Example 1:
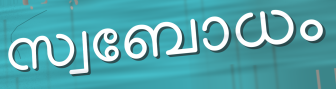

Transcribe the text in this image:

സ്വബോധം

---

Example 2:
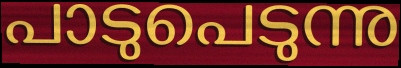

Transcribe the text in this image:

പാടുപെടുന്നു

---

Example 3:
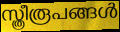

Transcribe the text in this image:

സ്ത്രീരൂപങ്ങൾ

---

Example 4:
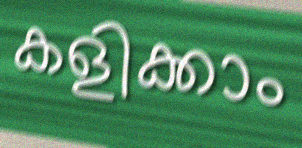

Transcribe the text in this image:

കളിക്കാം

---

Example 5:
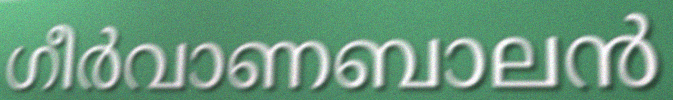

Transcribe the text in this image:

ഗീർവാണബാലൻ